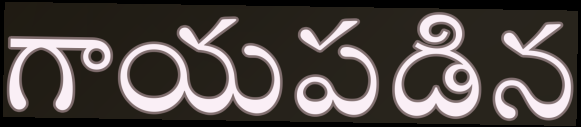
గాయపడిన